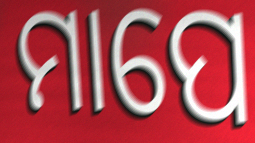
ମାପେ